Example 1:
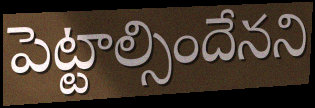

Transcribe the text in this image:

పెట్టాల్సిందేనని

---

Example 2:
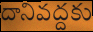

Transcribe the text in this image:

దానివద్దకు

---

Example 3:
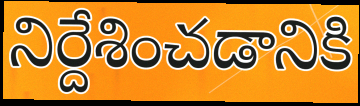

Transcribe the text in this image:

నిర్దేశించడానికి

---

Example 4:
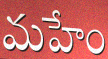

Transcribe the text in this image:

మహేం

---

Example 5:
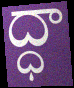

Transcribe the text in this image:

ద్ధా